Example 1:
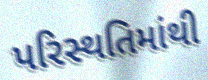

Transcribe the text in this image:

પરિસ્થતિમાંથી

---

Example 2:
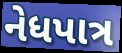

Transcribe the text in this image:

નેધપાત્ર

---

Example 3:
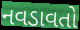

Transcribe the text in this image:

નવડાવતો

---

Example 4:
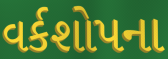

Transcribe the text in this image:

વર્કશોપના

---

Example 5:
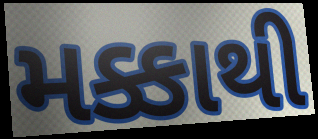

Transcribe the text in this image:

મક્કાથી